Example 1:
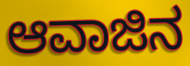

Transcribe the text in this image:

ಆವಾಜಿನ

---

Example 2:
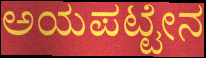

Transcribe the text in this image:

ಅಯಪಟ್ಟೇನ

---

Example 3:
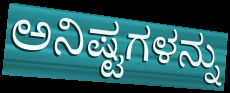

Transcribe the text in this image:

ಅನಿಷ್ಟಗಳನ್ನು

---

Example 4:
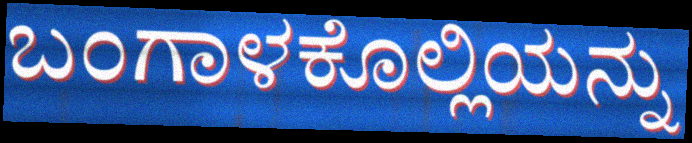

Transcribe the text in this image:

ಬಂಗಾಳಕೊಲ್ಲಿಯನ್ನು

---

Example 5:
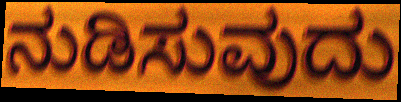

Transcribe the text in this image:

ನುಡಿಸುವುದು